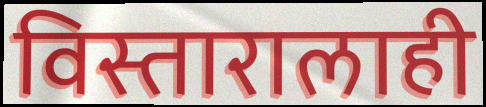
विस्तारालाही